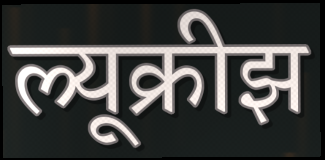
ल्यूक्रीझ